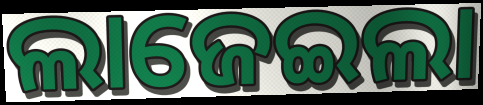
ଲାଜେଇଲା